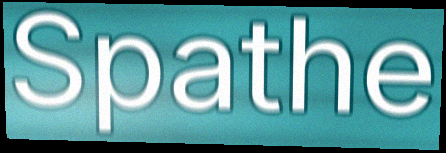
Spathe